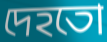
দেহতো